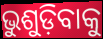
ଭୁଶୁଡ଼ିବାକୁ